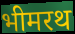
भीमरथ